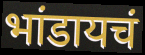
भांडायचं